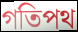
গতিপথ